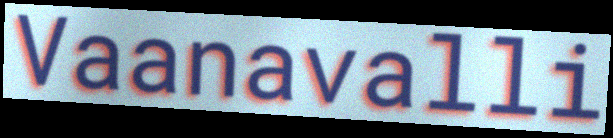
Vaanavalli